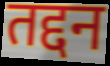
तद्दन